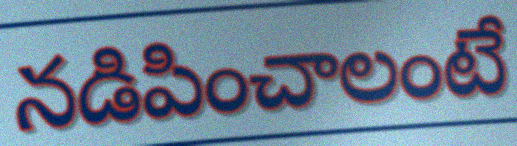
నడిపించాలంటే